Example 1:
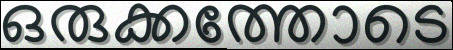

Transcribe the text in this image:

ഒരുക്കത്തോടെ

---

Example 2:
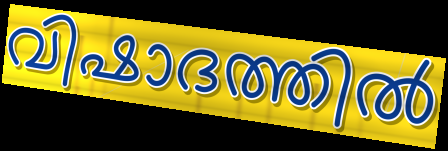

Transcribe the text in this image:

വിഷാദത്തിൽ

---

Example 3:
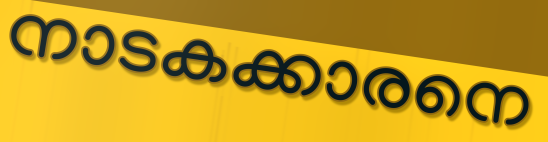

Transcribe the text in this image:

നാടകക്കാരനെ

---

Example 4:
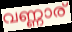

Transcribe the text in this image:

വണ്ണാര്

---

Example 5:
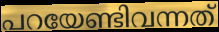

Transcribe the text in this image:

പറയേണ്ടിവന്നത്